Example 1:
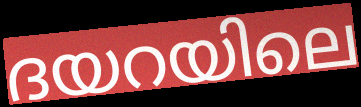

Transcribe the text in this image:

ദയറയിലെ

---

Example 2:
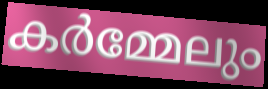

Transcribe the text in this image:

കർമ്മേലും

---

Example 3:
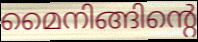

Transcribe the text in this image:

മൈനിങ്ങിന്റെ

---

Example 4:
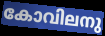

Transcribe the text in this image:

കോവിലനു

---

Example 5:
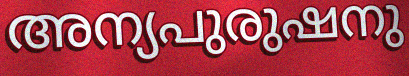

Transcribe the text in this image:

അന്യപുരുഷനു